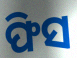
ଫିସ